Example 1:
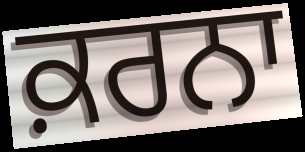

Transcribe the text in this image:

ਕ਼ਰਨਾ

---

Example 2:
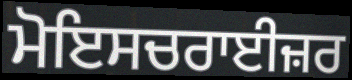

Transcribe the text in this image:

ਮੋਇਸਚਰਾਈਜ਼ਰ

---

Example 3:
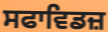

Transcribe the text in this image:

ਸਫਾਵਿਡਜ਼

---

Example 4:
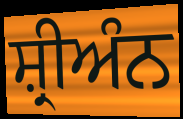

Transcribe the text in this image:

ਸ਼੍ਰੀਅੰਨ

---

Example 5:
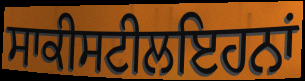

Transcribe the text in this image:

ਸਾਕੀਸਟੀਲਇਹਨਾਂ